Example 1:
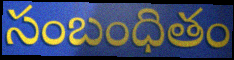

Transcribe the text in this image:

సంబంధితం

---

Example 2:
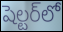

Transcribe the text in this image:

షెల్టర్‌లో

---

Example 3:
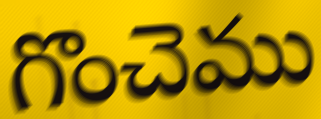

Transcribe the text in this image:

గొంచెము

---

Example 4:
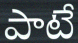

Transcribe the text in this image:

పాటే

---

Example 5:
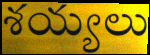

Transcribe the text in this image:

శయ్యలు